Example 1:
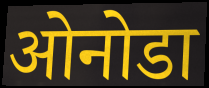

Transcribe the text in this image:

ओनोडा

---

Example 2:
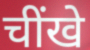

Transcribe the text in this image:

चींखे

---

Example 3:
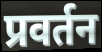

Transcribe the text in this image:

प्रवर्तन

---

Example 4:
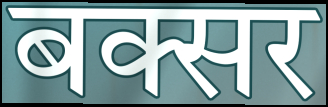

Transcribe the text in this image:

बक्सर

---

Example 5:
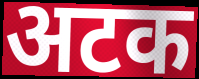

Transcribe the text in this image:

अटक